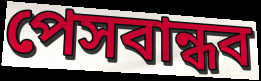
পেসবান্ধব